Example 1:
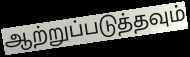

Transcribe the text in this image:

ஆற்றுப்படுத்தவும்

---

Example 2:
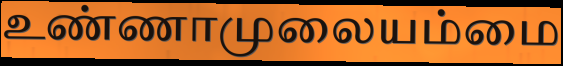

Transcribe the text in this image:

உண்ணாமுலையம்மை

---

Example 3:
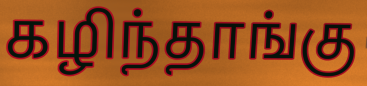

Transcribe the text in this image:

கழிந்தாங்கு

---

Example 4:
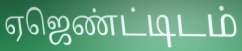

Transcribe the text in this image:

ஏஜெண்ட்டிடம்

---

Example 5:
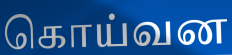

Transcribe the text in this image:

கொய்வன